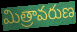
మిత్రావరుణ